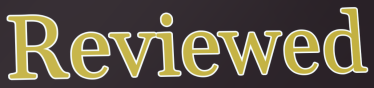
Reviewed